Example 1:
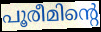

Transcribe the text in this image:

പൂരീമിന്റെ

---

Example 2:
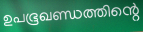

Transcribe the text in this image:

ഉപഭൂഖണ്ഡത്തിന്റെ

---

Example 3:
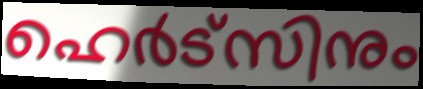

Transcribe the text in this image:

ഹെർട്സിനും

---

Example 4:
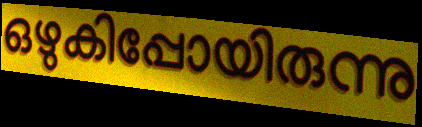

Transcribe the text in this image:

ഒഴുകിപ്പോയിരുന്നു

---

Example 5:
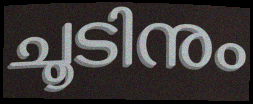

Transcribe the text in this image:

ചൂടിനും